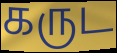
கருட